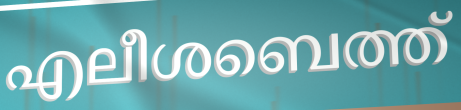
എലീശബെത്ത്